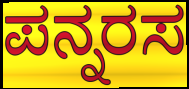
ಪನ್ನರಸ